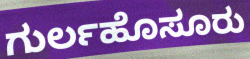
ಗುರ್ಲಹೊಸೂರು